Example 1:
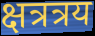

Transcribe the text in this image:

क्षत्रत्रय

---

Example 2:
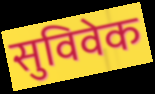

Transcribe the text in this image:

सुविवेक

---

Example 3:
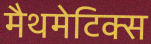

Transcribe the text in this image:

मैथमेटिक्स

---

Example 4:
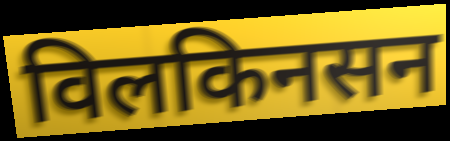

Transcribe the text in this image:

विलकिनसन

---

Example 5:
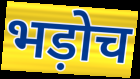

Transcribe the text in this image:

भड़ोच